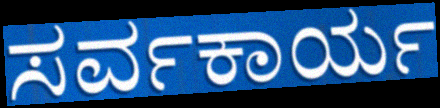
ಸರ್ವಕಾರ್ಯ